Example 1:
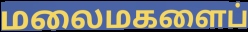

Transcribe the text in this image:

மலைமகளைப்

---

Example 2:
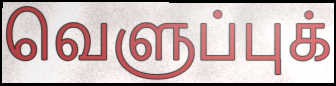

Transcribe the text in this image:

வெளுப்புக்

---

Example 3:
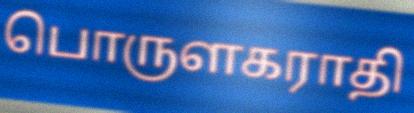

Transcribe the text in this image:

பொருளகராதி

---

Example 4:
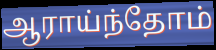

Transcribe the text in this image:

ஆராய்ந்தோம்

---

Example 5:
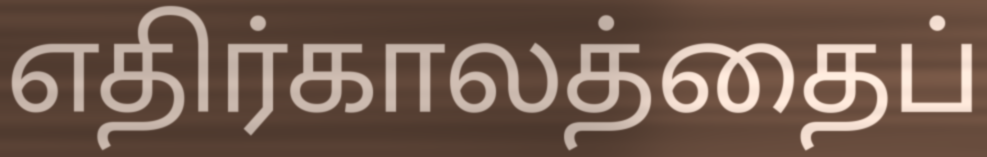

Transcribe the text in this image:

எதிர்காலத்தைப்